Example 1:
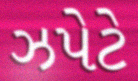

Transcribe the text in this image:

ઝપેટે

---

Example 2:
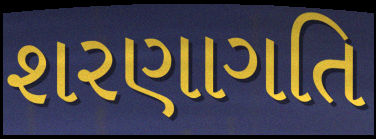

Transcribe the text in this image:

શરણાગતિ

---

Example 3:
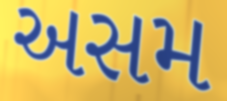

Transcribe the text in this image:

અસમ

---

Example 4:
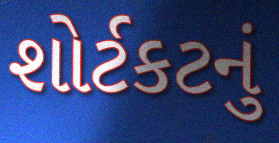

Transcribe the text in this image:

શોર્ટકટનું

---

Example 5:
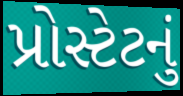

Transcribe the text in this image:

પ્રોસ્ટેટનું